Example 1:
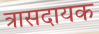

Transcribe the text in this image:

त्रासदायक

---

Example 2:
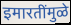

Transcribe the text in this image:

इमारतींमुळे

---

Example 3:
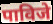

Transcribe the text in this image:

पाविजे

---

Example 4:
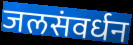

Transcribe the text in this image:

जलसंवर्धन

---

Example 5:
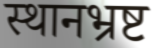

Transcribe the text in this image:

स्थानभ्रष्ट